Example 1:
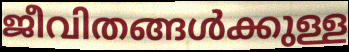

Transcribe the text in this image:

ജീവിതങ്ങൾക്കുള്ള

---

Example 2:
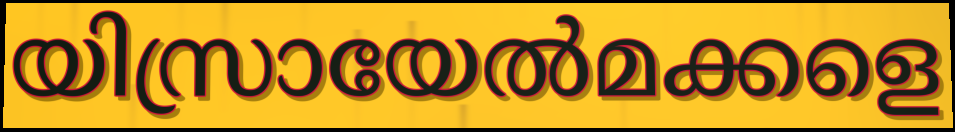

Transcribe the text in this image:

യിസ്രായേൽമക്കളെ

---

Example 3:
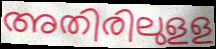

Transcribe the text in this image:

അതിരിലുളള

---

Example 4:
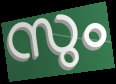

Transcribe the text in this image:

സും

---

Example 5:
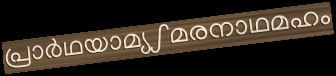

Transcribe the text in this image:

പ്രാർഥയാമ്യഽമരനാഥമഹം